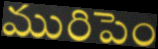
మురిపెం